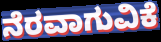
ನೆರವಾಗುವಿಕೆ